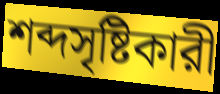
শব্দসৃষ্টিকারী